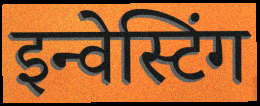
इन्वेस्टिंग